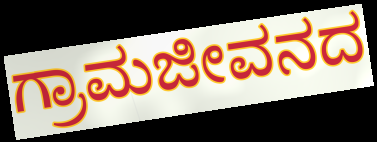
ಗ್ರಾಮಜೀವನದ